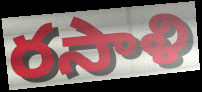
రసాళి